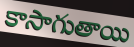
కాసాగుతాయి